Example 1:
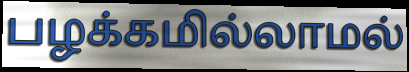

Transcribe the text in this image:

பழக்கமில்லாமல்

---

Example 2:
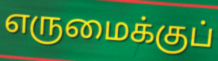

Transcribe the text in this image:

எருமைக்குப்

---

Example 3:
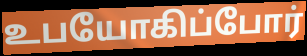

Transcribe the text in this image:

உபயோகிப்போர்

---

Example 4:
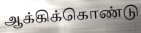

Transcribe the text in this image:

ஆக்கிக்கொண்டு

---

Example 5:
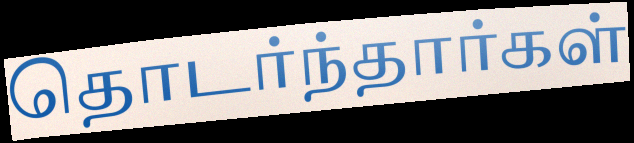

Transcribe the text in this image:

தொடர்ந்தார்கள்